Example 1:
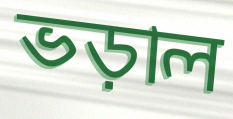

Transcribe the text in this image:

ভড়াল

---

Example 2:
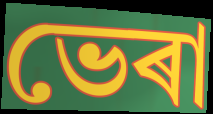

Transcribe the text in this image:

ভেৰা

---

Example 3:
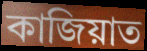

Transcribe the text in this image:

কাজিয়াত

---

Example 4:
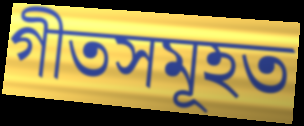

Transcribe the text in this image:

গীতসমূহত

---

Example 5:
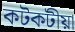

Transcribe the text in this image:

কটকটীয়া